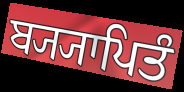
ਬ੍ਯ੍ਯਾਪਿਤੰ